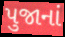
પુજાનાં